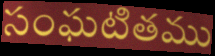
సంఘటితము